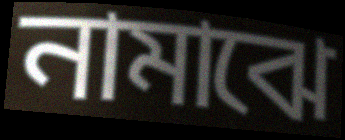
নামাঝে